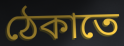
ঠেকাতে